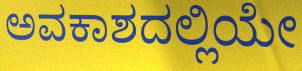
ಅವಕಾಶದಲ್ಲಿಯೇ